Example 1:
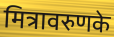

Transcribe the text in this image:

मित्रावरुणके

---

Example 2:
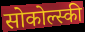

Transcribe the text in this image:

सोकोल्स्की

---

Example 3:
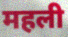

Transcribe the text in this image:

महली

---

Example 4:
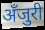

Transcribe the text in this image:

अँजुरी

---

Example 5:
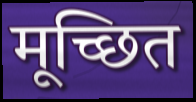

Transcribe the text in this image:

मूच्छित